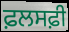
ਫ਼ਲਸਫ਼ੀ